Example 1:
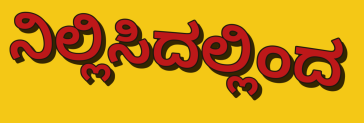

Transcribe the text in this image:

ನಿಲ್ಲಿಸಿದಲ್ಲಿಂದ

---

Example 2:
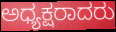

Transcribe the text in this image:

ಅಧ್ಯಕ್ಷರಾದರು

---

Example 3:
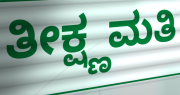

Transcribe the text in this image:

ತೀಕ್ಷ್ಣಮತಿ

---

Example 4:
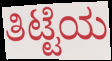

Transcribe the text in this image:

ತಿಟ್ಟೆಯ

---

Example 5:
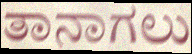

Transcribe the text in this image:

ತಾನಾಗಲು